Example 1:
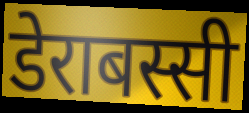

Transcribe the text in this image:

डेराबस्सी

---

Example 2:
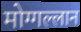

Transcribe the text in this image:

मोग्गल्लान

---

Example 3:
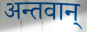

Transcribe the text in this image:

अन्तवान्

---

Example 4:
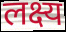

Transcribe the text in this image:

लक्ष्‍य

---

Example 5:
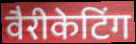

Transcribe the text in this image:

वैरीकेटिंग